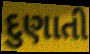
દુણાતી